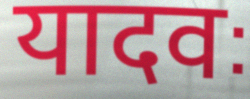
यादवः